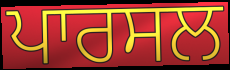
ਪਾਰਸਲ